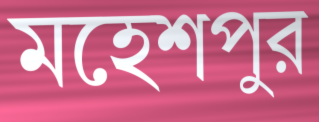
মহেশপুর